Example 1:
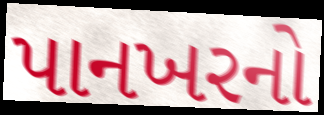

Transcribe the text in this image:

પાનખરનો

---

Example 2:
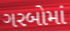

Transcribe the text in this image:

ગરબોમાં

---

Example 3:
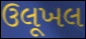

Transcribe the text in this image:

ઉલૂખલ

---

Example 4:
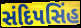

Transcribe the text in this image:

સંદિપસિંહ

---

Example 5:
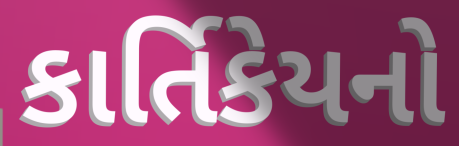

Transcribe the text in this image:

કાર્તિકેયનો